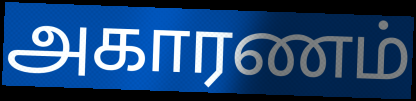
அகாரணம்